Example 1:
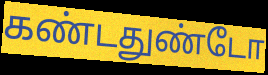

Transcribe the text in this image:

கண்டதுண்டோ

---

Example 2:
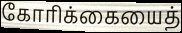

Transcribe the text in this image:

கோரிக்கையைத்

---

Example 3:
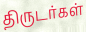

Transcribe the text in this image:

திருடர்கள்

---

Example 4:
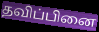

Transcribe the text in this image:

தவிப்பினை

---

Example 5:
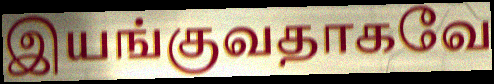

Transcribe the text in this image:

இயங்குவதாகவே